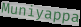
Muniyappa